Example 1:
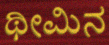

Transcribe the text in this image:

ಥೀಮಿನ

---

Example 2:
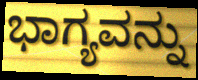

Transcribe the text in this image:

ಭಾಗ್ಯವನ್ನು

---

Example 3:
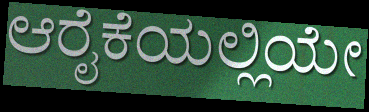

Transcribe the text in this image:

ಆರೈಕೆಯಲ್ಲಿಯೇ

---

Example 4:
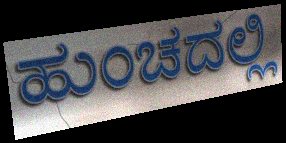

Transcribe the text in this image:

ಹುಂಚದಲ್ಲಿ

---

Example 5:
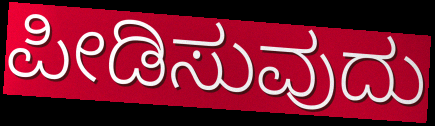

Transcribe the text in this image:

ಪೀಡಿಸುವುದು